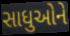
સાધુઓને